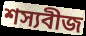
শস্যবীজ